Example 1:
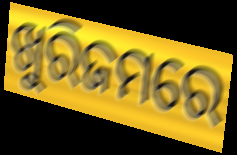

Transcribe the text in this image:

ଖୁରିଜମରେ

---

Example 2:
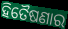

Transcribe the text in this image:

ହିତୈଷଣାର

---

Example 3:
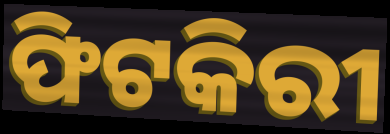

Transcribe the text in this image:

ଫିଟକିରୀ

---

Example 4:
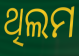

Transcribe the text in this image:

ଥିଲମ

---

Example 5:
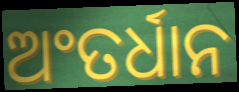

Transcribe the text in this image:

ଅଂତର୍ଧାନ